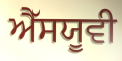
ਐੱਸਯੂਵੀ